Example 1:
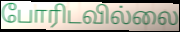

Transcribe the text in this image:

போரிடவில்லை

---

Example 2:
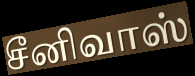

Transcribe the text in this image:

சீனிவாஸ்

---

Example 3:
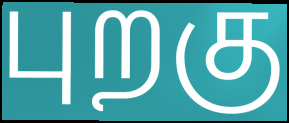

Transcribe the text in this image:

புறகு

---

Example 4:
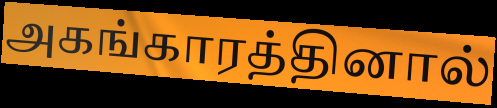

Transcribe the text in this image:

அகங்காரத்தினால்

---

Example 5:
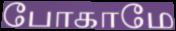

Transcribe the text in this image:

போகாமே